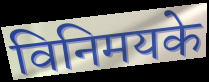
विनिमयके